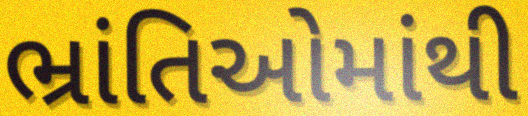
ભ્રાંતિઓમાંથી